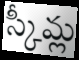
స్కీమ్ల